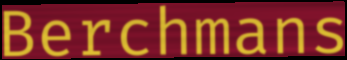
Berchmans